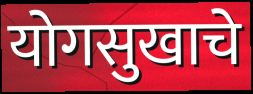
योगसुखाचे